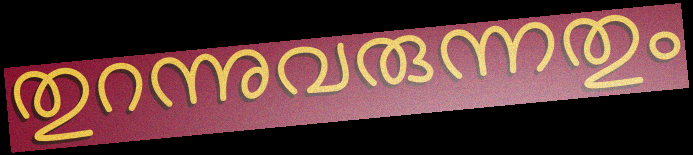
തുറന്നുവരുന്നതും